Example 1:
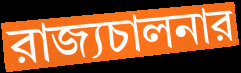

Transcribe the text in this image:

রাজ্যচালনার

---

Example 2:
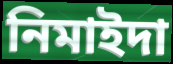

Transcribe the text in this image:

নিমাইদা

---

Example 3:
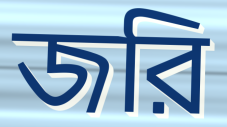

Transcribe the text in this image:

জরি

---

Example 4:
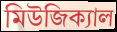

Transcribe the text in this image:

মিউজিক্যাল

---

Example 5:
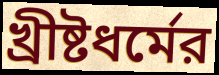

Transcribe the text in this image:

খ্রীষ্টধর্মের